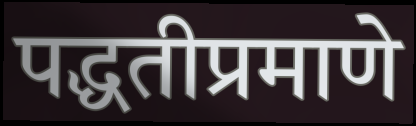
पद्धतीप्रमाणे